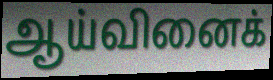
ஆய்வினைக்